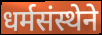
धर्मसंस्थेने